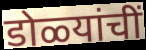
डोळ्यांचीं